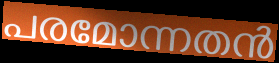
പരമോന്നതൻ